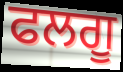
ਫਲਗੂ